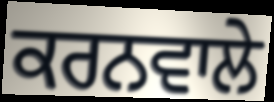
ਕਰਨਵਾਲੇ